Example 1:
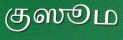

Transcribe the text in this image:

குஸூம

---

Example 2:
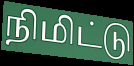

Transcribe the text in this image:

நிமிட்டு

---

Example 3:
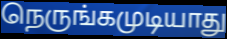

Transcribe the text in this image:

நெருங்கமுடியாது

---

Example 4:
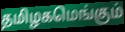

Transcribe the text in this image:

தமிழகமெங்கும்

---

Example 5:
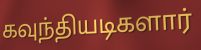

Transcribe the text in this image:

கவுந்தியடிகளார்